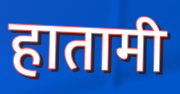
हातामी